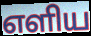
எளிய